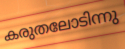
കരുതലോടിന്നു